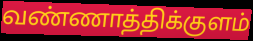
வண்ணாத்திக்குளம்